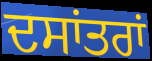
ਦਸਾਂਤਰਾਂ